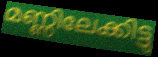
മണ്ണിലേക്കിട്ടു